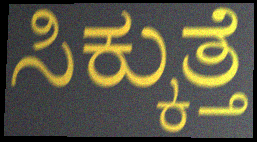
ಸಿಕ್ಕುತ್ತೆ